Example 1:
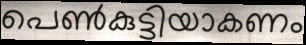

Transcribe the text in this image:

പെൺകുട്ടിയാകണം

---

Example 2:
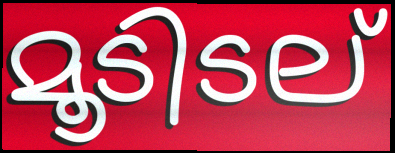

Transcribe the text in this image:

മൂടിടല്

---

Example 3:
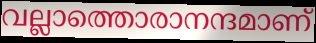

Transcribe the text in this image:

വല്ലാത്തൊരാനന്ദമാണ്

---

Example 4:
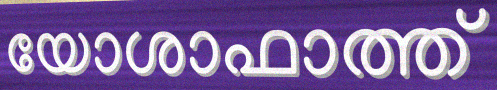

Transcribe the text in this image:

യോശാഫാത്ത്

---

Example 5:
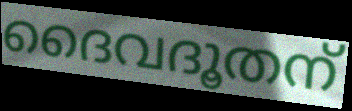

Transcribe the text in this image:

ദൈവദൂതന്